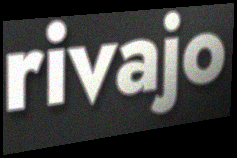
rivajo